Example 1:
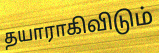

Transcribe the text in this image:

தயாராகிவிடும்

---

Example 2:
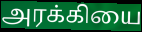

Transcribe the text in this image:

அரக்கியை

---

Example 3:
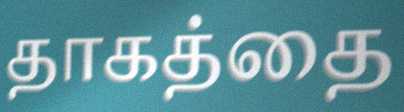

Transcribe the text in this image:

தாகத்தை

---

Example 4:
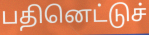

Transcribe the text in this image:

பதினெட்டுச்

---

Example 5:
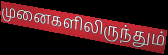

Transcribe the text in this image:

முனைகளிலிருந்தும்